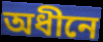
অধীনে